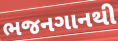
ભજનગાનથી